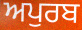
ਅਪੁਰਬ